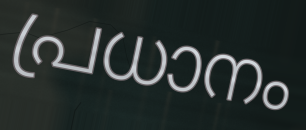
പ്രധാനം